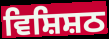
ਵਿਸ਼ਿਸ਼ਠ